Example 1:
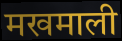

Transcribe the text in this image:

मखमाली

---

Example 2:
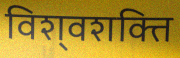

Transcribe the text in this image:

विश्वशक्ति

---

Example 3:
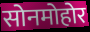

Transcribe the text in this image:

सोनमोहोर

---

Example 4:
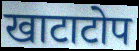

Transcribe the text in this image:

खाटाटोप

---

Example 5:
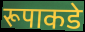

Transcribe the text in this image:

रूपाकडे